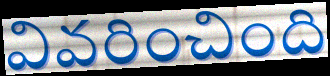
వివరించింది